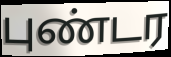
புண்டர